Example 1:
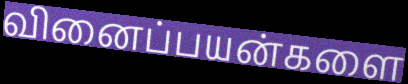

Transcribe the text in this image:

வினைப்பயன்களை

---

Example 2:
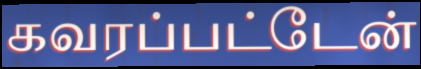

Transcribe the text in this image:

கவரப்பட்டேன்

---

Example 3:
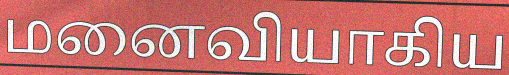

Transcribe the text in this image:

மனைவியாகிய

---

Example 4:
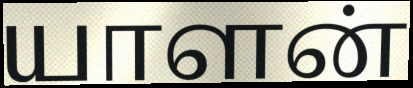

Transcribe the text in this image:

யாளன்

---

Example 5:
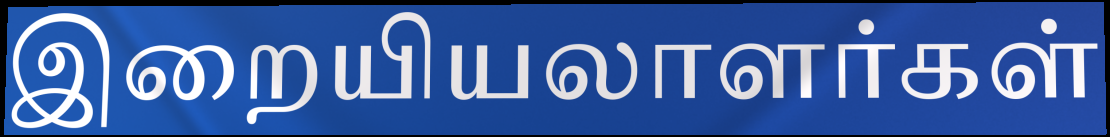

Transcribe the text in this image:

இறையியலாளர்கள்